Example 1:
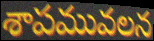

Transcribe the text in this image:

శాపమువలన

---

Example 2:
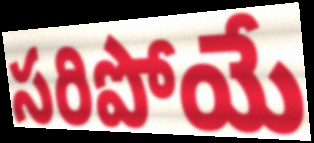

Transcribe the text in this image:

సరిపోయే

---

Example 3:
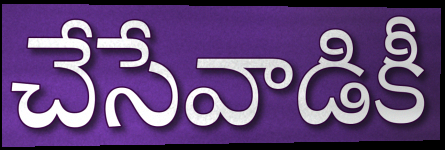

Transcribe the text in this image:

చేసేవాడికీ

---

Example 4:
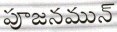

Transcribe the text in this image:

పూజనమున్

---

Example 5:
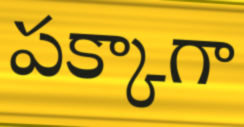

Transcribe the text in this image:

పక్కాగా